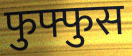
फुफ्फुस